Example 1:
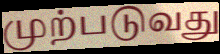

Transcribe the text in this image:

முற்படுவது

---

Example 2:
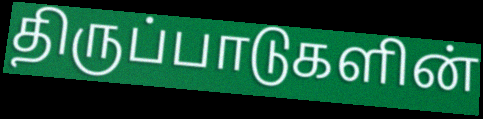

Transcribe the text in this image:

திருப்பாடுகளின்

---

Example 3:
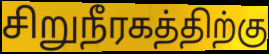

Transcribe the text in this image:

சிறுநீரகத்திற்கு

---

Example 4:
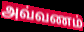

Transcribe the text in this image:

அவ்வணம்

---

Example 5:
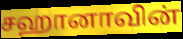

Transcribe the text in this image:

சஹானாவின்